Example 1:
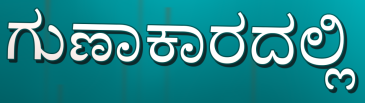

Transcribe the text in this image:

ಗುಣಾಕಾರದಲ್ಲಿ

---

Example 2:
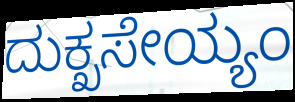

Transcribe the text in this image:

ದುಕ್ಖಸೇಯ್ಯಂ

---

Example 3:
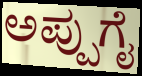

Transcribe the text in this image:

ಅಪ್ಪುಗೈ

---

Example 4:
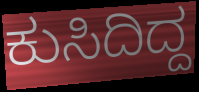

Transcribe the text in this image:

ಕುಸಿದಿದ್ದ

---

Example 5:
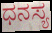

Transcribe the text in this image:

ಧನಸ್ಯ